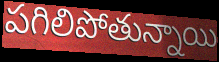
పగిలిపోతున్నాయి